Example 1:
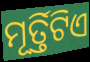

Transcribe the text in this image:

ମୂର୍ତ୍ତିଟିଏ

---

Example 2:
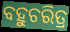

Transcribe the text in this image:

ବହୁଚରିତ୍ର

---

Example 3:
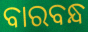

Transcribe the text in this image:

ବାରବନ୍ଧ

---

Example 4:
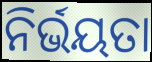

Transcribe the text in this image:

ନିର୍ଭୟତା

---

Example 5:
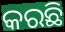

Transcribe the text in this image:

କରଛି